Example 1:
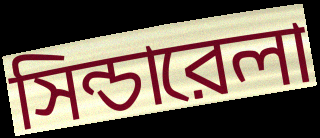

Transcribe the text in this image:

সিন্ডারেলা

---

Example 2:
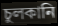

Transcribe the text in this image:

চুলকানি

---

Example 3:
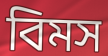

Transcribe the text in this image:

বিমস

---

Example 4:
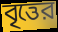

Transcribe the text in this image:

বৃত্তের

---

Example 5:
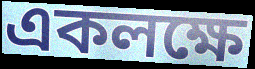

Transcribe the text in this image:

একলক্ষে